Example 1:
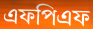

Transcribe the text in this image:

এফপিএফ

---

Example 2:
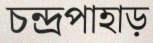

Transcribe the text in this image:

চন্দ্রপাহাড়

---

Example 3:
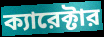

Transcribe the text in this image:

ক্যারেক্টার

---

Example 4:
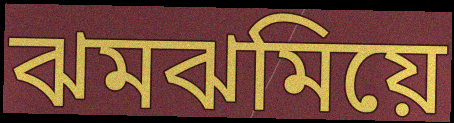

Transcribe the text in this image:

ঝমঝমিয়ে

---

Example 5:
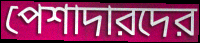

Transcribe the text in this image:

পেশাদারদের